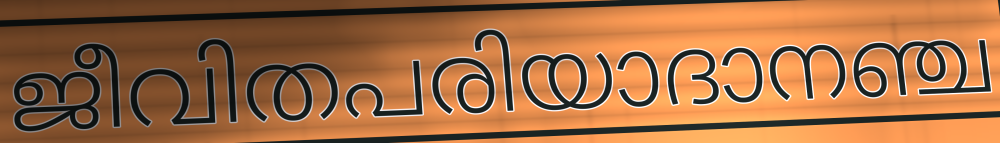
ജീവിതപരിയാദാനഞ്ച